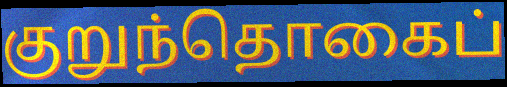
குறுந்தொகைப்